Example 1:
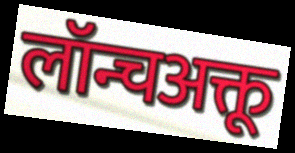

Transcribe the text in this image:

लॉन्चअक्तू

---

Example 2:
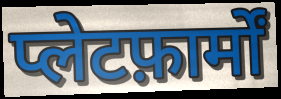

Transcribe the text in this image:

प्लेटफ़ार्मों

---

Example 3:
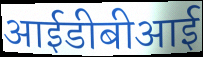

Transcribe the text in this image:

आईडीबीआई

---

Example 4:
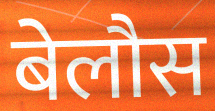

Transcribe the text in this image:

बेलौस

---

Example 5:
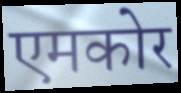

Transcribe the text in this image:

एमकोर